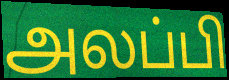
அலப்பி